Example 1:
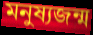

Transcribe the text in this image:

মনুষ্যজন্ম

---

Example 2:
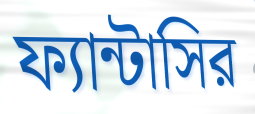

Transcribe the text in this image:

ফ্যান্টাসির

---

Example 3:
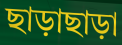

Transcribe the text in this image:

ছাড়াছাড়া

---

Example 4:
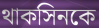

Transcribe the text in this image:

থাকসিনকে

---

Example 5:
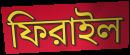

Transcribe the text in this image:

ফিরাইল